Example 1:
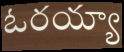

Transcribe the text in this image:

ఓరయ్యా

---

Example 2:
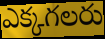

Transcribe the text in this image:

ఎక్కగలరు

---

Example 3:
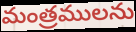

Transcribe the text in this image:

మంత్రములను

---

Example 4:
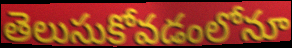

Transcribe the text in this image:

తెలుసుకోవడంలోనూ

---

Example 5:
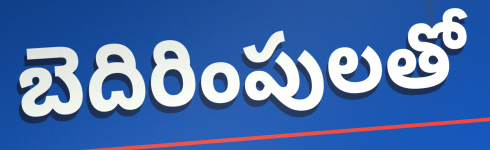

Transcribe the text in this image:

బెదిరింపులతో